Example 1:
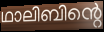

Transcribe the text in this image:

ഥാലിബിന്റെ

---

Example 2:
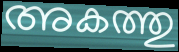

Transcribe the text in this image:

അകത്തു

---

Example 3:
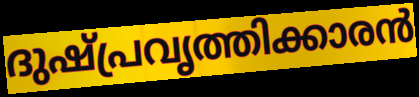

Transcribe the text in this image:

ദുഷ്പ്രവൃത്തിക്കാരൻ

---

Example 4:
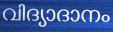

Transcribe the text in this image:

വിദ്യാദാനം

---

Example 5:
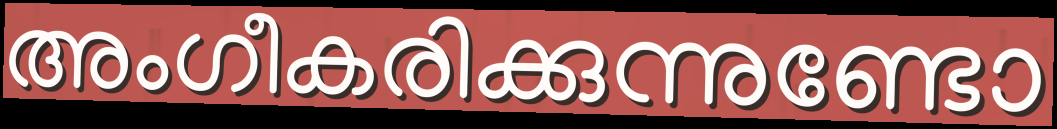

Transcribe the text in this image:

അംഗീകരിക്കുന്നുണ്ടോ